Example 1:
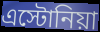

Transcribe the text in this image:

এস্টোনিয়া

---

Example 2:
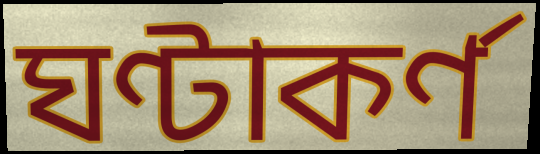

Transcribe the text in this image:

ঘণ্টাকর্ণ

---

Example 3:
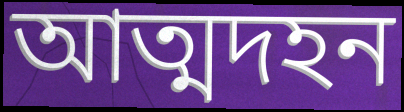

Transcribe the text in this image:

আত্মদহন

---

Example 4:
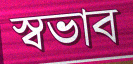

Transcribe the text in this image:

স্বভাব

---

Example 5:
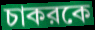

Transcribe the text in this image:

চাকরকে